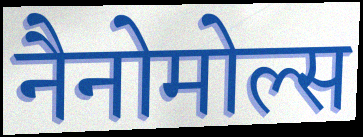
नैनोमोल्स